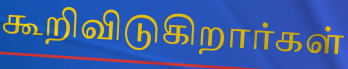
கூறிவிடுகிறார்கள்